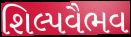
શિલ્પવૈભવ